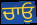
ਚਾਓੁ